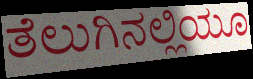
ತೆಲುಗಿನಲ್ಲಿಯೂ